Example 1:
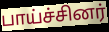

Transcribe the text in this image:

பாய்ச்சினர்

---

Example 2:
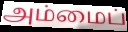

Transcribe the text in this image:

அம்மைப்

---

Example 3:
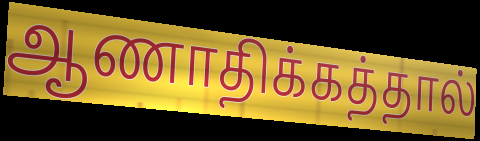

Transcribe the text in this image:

ஆணாதிக்கத்தால்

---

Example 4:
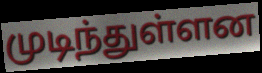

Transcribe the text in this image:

முடிந்துள்ளன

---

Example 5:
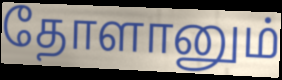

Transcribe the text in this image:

தோளானும்